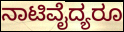
ನಾಟಿವೈದ್ಯರೂ